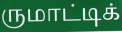
ருமாட்டிக்